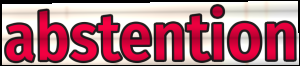
abstention